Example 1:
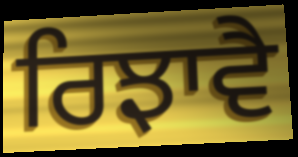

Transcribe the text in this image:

ਰਿਝਾਵੈ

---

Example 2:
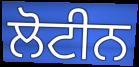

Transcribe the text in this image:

ਲੋਟੀਨ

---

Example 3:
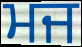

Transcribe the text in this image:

ਮਜ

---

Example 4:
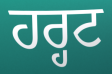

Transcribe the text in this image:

ਹਰ੍ਹਟ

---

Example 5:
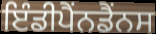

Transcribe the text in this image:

ਇੰਡੀਪੈਂਨਡੈਂਨਸ